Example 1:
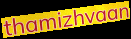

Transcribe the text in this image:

thamizhvaan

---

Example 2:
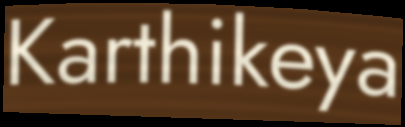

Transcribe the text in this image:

Karthikeya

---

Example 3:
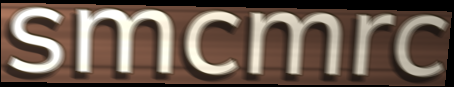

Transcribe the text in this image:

smcmrc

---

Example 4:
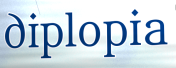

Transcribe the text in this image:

diplopia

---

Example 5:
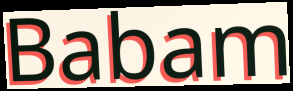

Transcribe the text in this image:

Babam